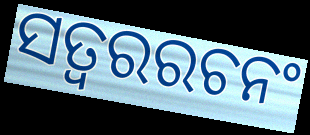
ସତ୍ୱରରଚନଂ